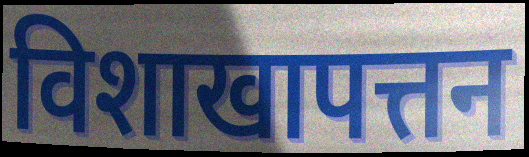
विशाखापत्तन